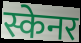
स्केनर